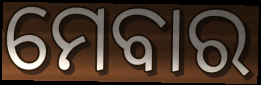
ମେବାର